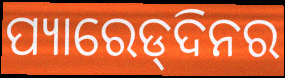
ପ୍ୟାରେଡ୍‌ଦିନର